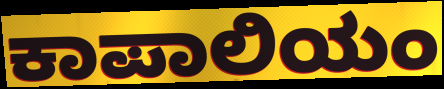
ಕಾಪಾಲಿಯಂ